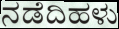
ನಡೆದಿಹಳು